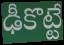
ఢీకొట్టే